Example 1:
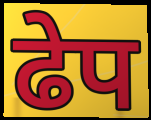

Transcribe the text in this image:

ढेप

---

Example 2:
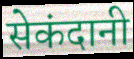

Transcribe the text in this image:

सेकंदानी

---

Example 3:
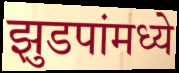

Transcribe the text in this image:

झुडपांमध्ये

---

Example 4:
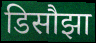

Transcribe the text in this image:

डिसौझा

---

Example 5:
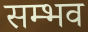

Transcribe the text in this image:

सम्भव